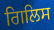
ਗਿਲਿਸ